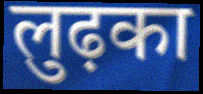
लुढ़का